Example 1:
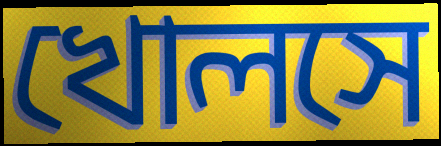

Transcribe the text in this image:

খোলসে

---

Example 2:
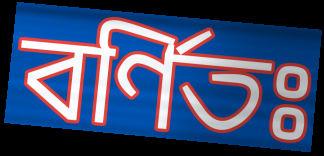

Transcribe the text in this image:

বর্ণিতঃ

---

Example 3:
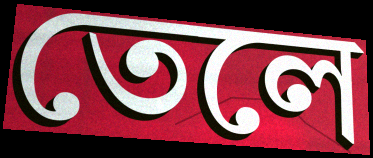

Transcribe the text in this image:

তেলে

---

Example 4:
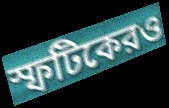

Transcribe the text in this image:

স্ফটিকেরও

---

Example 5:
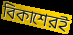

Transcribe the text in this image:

বিকাশেরই